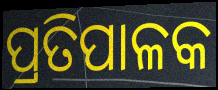
ପ୍ରତିପାଳକ